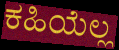
ಕಹಿಯೆಲ್ಲ